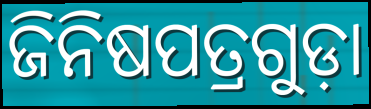
ଜିନିଷପତ୍ରଗୁଡ଼ା